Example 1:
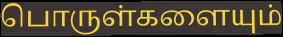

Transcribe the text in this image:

பொருள்களையும்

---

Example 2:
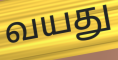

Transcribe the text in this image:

வயது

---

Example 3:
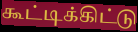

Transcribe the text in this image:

கூட்டிக்கிட்டு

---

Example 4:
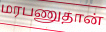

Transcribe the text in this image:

மரபணுதான்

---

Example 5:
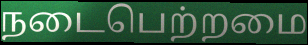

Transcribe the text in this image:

நடைபெற்றமை